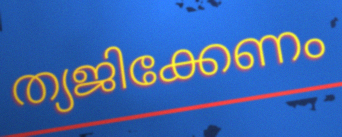
ത്യജിക്കേണം